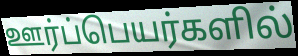
ஊர்ப்பெயர்களில்